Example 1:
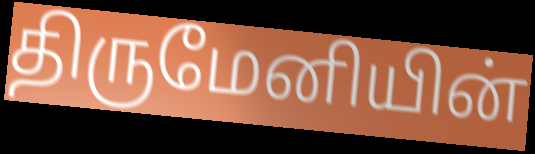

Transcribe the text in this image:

திருமேனியின்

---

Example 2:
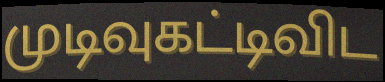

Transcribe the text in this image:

முடிவுகட்டிவிட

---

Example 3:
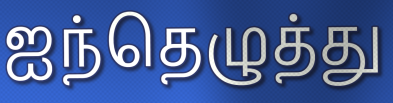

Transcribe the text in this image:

ஐந்தெழுத்து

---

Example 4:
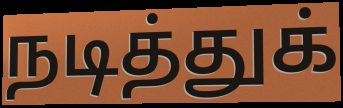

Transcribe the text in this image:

நடித்துக்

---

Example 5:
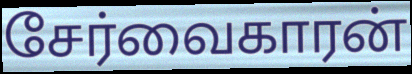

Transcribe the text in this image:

சேர்வைகாரன்